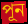
পূন